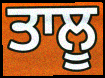
ਤਾਲੂ